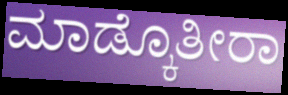
ಮಾಡ್ಕೊತೀರಾ